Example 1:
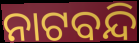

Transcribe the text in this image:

ନାଟବନ୍ଦି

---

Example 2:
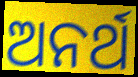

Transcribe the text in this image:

ଅନର୍ଥ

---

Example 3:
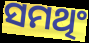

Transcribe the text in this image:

ସମଥିଂ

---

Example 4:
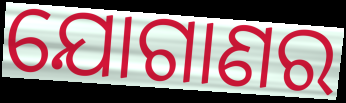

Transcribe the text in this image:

ଯୋଗାଣର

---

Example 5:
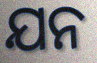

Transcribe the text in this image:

ଯନ